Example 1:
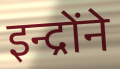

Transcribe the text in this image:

इन्द्रोंने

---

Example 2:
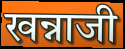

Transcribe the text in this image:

खन्नाजी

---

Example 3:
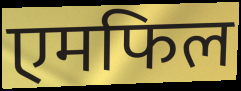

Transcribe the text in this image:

एमफिल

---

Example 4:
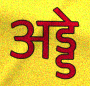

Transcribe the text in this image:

अड्डे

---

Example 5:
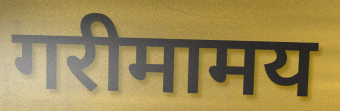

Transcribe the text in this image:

गरीमामय